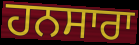
ਹਨਸਾਰਾ